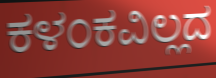
ಕಳಂಕವಿಲ್ಲದ